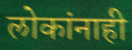
लोकांनाही